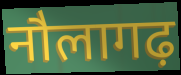
नौलागढ़